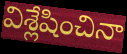
విశ్లేషించినా